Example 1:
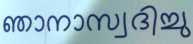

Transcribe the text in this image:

ഞാനാസ്വദിച്ചു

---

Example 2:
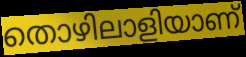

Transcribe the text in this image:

തൊഴിലാളിയാണ്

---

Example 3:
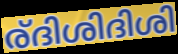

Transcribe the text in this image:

ര്ദിശിദിശി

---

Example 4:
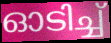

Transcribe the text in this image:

ഓടിച്ച്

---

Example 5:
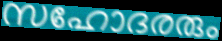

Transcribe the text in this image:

സഹോദരരും